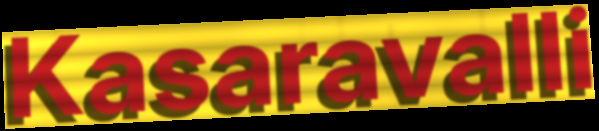
Kasaravalli